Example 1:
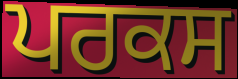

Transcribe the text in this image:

ਪਰਕਸ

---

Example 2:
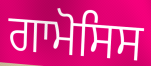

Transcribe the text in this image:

ਗਾਮੋਸਿਸ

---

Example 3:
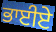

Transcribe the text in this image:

ਭਾਈਏ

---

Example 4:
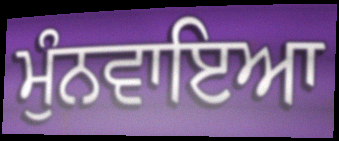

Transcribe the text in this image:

ਮੁੰਨਵਾਇਆ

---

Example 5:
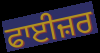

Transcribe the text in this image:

ਫਾਈਜ਼ਰ